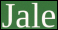
Jale